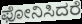
ಫೋನಿಸಿದರೆ